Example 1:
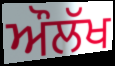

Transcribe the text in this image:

ਔਲੱਖ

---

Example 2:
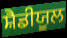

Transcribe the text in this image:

ਸ਼ੈਡੀਯੂਲ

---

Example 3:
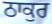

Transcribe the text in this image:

ਠਾਕੁਰ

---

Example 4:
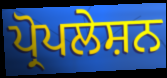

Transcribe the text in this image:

ਪ੍ਰੋਪਲੇਸ਼ਨ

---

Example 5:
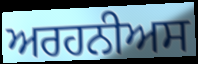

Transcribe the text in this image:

ਅਰਹਨੀਅਸ